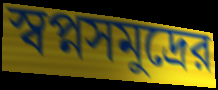
স্বপ্নসমুদ্রের